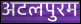
अटलपुरम